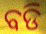
ବଡି